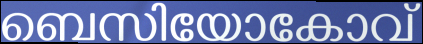
ബെസിയോകോവ്